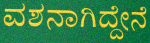
ವಶನಾಗಿದ್ದೇನೆ